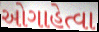
ઓગાહેત્વા